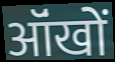
ऑंखों